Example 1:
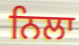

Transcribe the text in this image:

ਨਿਲਾ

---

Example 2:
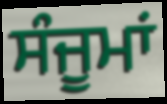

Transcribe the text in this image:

ਸੰਜੂਮਾਂ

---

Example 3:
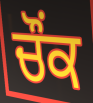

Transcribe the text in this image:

ਚੌਂਕ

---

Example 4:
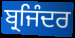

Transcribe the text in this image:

ਬ੍ਰਜਿੰਦਰ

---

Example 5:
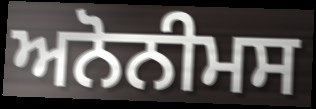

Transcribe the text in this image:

ਅਨੋਨੀਮਸ